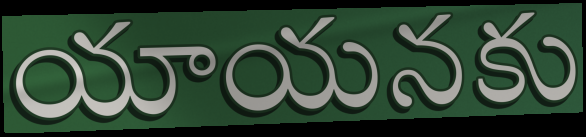
యాయనకు